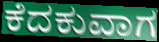
ಕೆದಕುವಾಗ